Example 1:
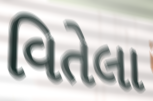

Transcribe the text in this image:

વિતેલા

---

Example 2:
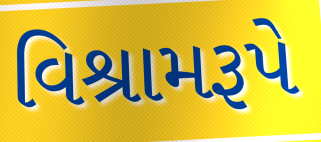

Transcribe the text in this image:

વિશ્રામરૂપે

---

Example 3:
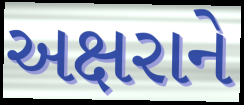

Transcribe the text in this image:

અક્ષરાને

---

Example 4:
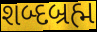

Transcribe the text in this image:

શબ્દબ્રહ્મ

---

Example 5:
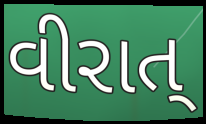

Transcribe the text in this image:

વીરાત્